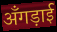
अँगड़ाई